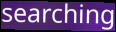
searching